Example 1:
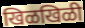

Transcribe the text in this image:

खिळखिळी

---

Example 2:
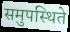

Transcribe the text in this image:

समुपस्थिते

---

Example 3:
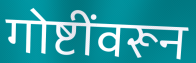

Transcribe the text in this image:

गोष्टींवरून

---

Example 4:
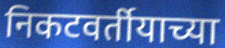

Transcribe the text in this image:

निकटवर्तीयाच्या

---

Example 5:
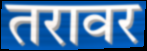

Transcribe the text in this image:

तरावर